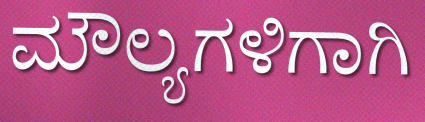
ಮೌಲ್ಯಗಳಿಗಾಗಿ